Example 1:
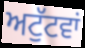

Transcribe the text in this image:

ਅਟੁੱਟਵਾਂ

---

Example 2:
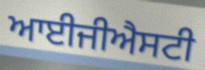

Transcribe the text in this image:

ਆਈਜੀਐਸਟੀ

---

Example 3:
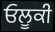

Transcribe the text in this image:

ਓਲੂਕੀ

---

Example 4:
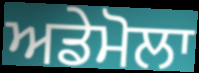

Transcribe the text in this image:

ਅਡੇਮੋਲਾ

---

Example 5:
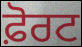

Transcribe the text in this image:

ਫ਼ੋਰਟ